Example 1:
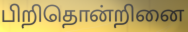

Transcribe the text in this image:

பிறிதொன்றினை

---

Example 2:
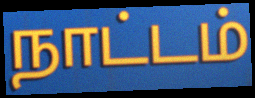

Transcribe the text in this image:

நாட்டம்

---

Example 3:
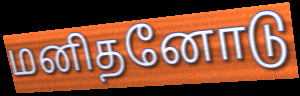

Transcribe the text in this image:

மனிதனோடு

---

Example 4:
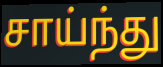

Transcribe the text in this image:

சாய்ந்து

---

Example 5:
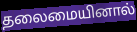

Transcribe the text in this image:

தலைமையினால்